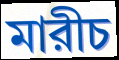
মারীচ